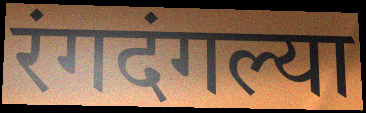
रंगदंगल्या